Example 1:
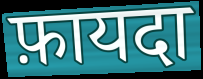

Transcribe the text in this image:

फ़ायदा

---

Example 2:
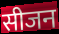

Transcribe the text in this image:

सीजन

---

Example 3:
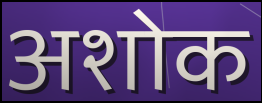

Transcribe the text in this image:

अशोक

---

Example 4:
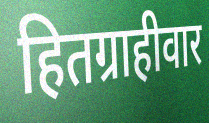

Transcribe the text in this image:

हितग्राहीवार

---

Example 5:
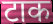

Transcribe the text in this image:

टाक